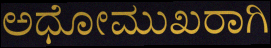
ಅಧೋಮುಖರಾಗಿ